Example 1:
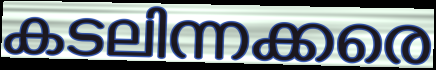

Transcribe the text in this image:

കടലിന്നക്കരെ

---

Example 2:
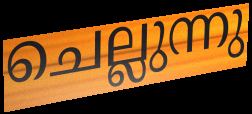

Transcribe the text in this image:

ചെല്ലുന്നു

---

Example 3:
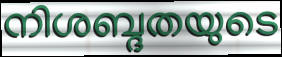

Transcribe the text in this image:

നിശബ്ദതയുടെ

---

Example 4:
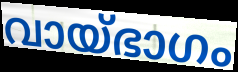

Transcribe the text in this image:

വായ്ഭാഗം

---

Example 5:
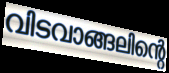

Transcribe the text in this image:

വിടവാങ്ങലിന്റെ